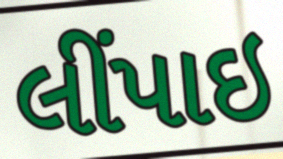
લીંપાઇ